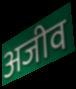
अजीव